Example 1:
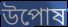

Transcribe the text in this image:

উপোষ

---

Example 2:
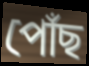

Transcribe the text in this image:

পোঁছ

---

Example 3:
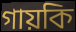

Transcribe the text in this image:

গায়কি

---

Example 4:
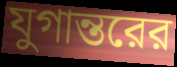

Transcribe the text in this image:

যুগান্তরের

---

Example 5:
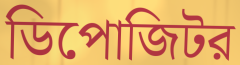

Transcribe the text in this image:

ডিপোজিটর